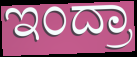
ಇಂದ್ರಾ